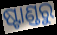
ଷ୍ଟାଣ୍ଡରୁ